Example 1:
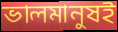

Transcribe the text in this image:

ভালমানুষই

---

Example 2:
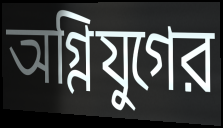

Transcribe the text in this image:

অগ্নিযুগের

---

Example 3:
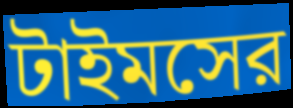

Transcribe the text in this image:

টাইমসের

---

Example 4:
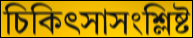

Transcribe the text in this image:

চিকিৎসাসংশ্লিষ্ট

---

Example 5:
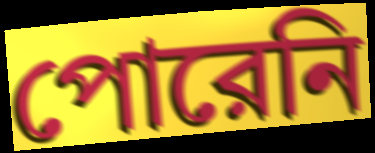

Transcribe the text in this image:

পোরেনি